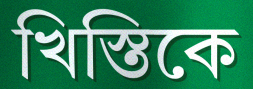
খিস্তিকে